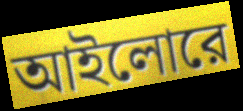
আইলোরে